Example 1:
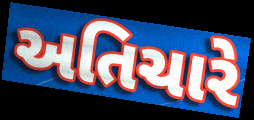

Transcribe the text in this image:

અતિચારે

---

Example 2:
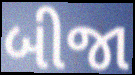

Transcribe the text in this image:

બીજા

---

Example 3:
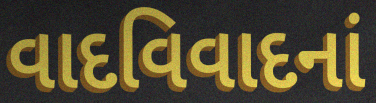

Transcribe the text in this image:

વાદવિવાદનાં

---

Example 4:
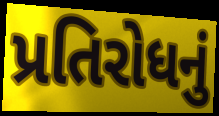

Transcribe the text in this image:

પ્રતિરોધનું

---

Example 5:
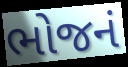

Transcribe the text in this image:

ભોજનં